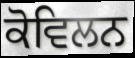
ਕੋਵਿਲਨ